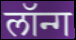
लॉन्ग